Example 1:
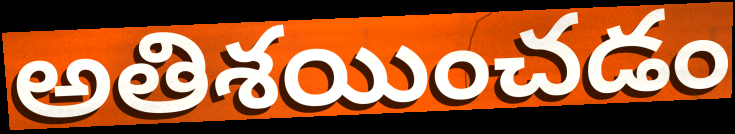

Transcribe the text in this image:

అతిశయించడం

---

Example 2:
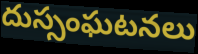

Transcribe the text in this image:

దుస్సంఘటనలు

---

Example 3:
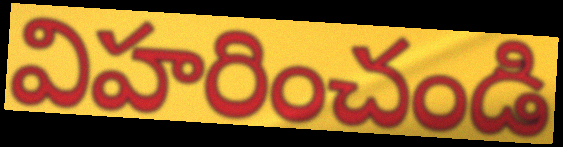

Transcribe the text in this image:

విహరించండి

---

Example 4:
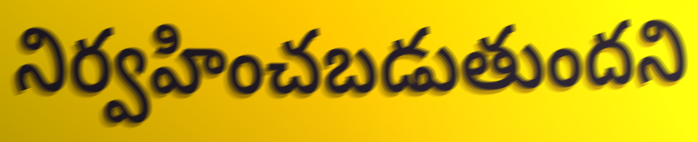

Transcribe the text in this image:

నిర్వహించబడుతుందని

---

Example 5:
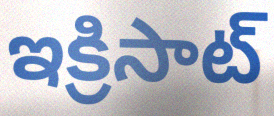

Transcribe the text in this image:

ఇక్రిసాట్